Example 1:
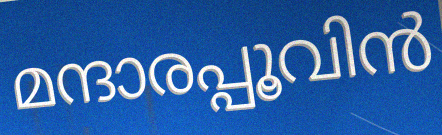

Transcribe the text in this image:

മന്ദാരപ്പൂവിൻ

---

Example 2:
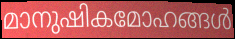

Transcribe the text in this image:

മാനുഷികമോഹങ്ങൾ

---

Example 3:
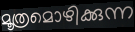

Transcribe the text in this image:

മൂത്രമൊഴിക്കുന്ന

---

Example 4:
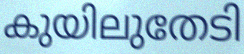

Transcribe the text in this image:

കുയിലുതേടി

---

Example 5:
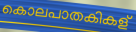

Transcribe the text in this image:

കൊലപാതകികള്